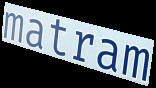
matram